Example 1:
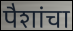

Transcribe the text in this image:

पैशांचा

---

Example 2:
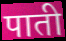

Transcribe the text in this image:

पाती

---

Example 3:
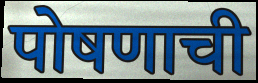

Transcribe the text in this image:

पोषणाची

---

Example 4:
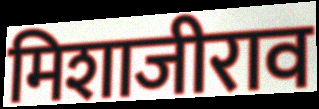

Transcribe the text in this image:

मिशाजीराव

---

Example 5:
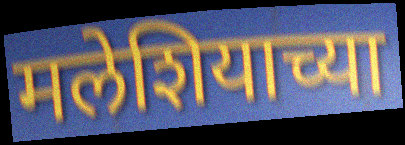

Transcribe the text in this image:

मलेशियाच्या